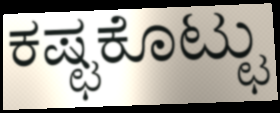
ಕಷ್ಟಕೊಟ್ಟು